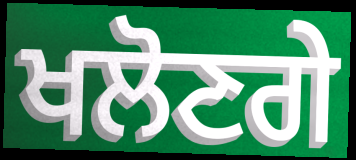
ਖਲੋਣਗੇ